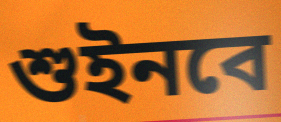
শুইনবে